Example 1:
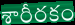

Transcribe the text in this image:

శారీరకం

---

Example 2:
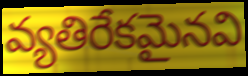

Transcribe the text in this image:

వ్యతిరేకమైనవి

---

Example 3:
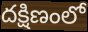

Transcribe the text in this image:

దక్షిణంలో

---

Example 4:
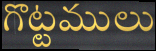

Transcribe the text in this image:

గొట్టములు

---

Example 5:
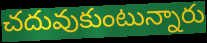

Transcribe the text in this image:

చదువుకుంటున్నారు